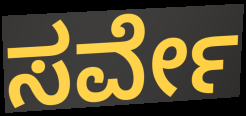
ಸರ್ವೇ